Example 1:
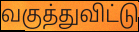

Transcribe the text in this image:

வகுத்துவிட்டு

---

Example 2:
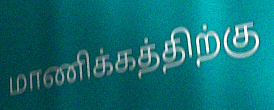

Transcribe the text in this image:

மாணிக்கத்திற்கு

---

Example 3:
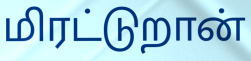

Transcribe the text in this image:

மிரட்டுறான்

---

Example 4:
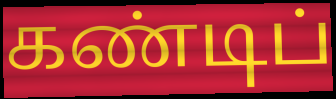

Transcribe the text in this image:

கண்டிப்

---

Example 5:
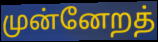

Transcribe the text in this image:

முன்னேறத்